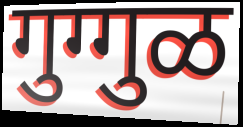
गुग्गुळ